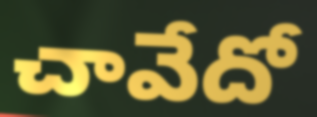
చావేదో